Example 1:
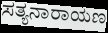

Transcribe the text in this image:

ಸತ್ಯನಾರಾಯಣ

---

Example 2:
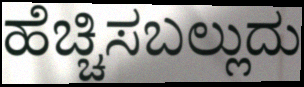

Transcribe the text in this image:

ಹೆಚ್ಚಿಸಬಲ್ಲುದು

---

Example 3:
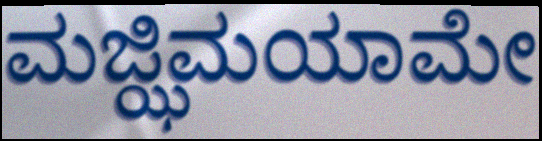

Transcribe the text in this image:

ಮಜ್ಝಿಮಯಾಮೇ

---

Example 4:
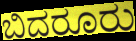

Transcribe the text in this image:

ಬಿದರೂರು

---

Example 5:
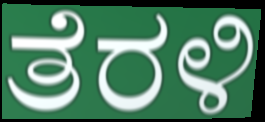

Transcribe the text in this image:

ತೆರಳಿ